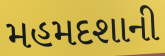
મહમદશાની